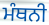
ਮੰਥਨੀ